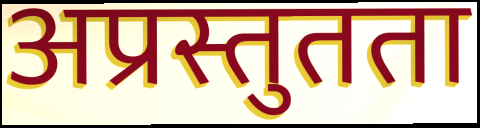
अप्रस्तुतता